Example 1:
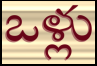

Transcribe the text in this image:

ఒళ్లు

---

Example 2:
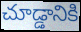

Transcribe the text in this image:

చూడ్డానికి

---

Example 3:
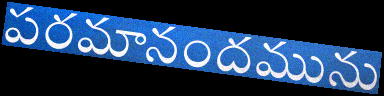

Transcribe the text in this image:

పరమానందమును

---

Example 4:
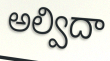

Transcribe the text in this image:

అల్విదా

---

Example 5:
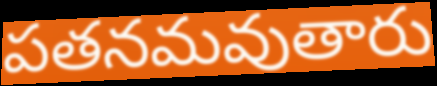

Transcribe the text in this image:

పతనమవుతారు